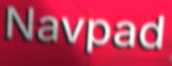
Navpad